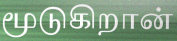
மூடுகிறான்